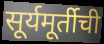
सूर्यमूर्तीची